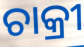
ଚାକ୍ରୀ